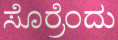
ಸೊರ್ರೆಂದು